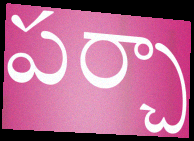
పర్చా